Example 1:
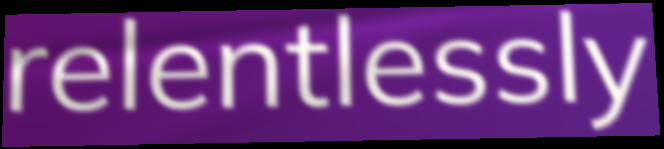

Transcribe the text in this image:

relentlessly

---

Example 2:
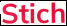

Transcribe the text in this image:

Stich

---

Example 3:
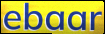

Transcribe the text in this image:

ebaar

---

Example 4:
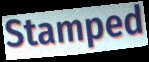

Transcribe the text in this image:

Stamped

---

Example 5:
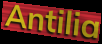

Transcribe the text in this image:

Antilia